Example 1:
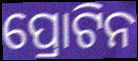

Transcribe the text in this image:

ପ୍ରୋଟିନ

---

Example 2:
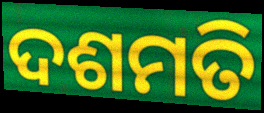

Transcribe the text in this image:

ଦଶମତି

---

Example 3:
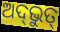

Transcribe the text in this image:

ଅଦ୍‌ଭୁତ୍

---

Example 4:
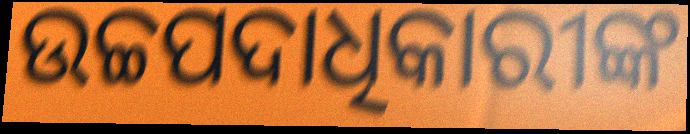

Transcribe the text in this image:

ଉଚ୍ଚପଦାଧିକାରୀଙ୍କ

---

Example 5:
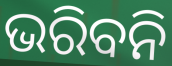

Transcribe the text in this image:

ଭରିବନି